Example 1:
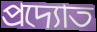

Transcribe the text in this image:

প্রদ্যোত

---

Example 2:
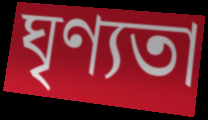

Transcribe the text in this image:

ঘৃণ্যতা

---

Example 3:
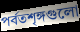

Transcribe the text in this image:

পর্বতশৃঙ্গগুলো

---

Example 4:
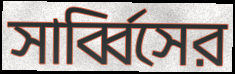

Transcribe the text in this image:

সার্ব্বিসের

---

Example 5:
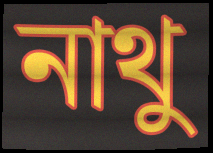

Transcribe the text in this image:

নাথু